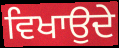
ਵਿਖਾਉਦੇ